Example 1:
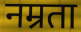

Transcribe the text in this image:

नम्रता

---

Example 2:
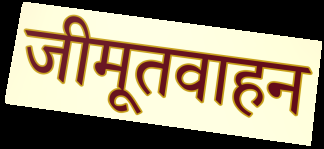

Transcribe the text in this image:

जीमूतवाहन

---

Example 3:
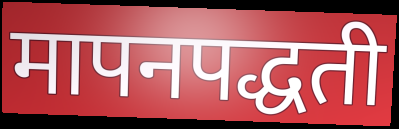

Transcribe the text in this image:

मापनपद्धती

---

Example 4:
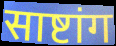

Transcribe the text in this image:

साष्टांग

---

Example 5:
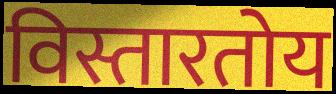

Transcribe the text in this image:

विस्तारतोय